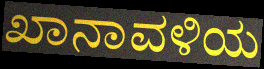
ಖಾನಾವಳಿಯ